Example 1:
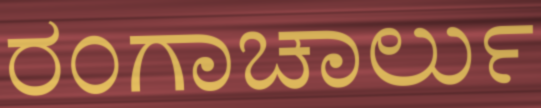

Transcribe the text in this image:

ರಂಗಾಚಾರ್ಲು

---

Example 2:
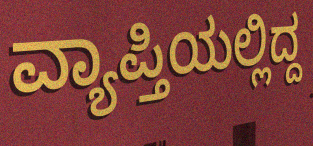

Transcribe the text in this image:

ವ್ಯಾಪ್ತಿಯಲ್ಲಿದ್ದ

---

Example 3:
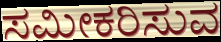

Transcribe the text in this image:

ಸಮೀಕರಿಸುವ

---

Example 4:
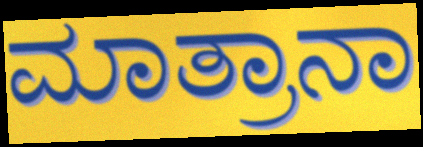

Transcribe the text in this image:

ಮಾತ್ರಾನಾ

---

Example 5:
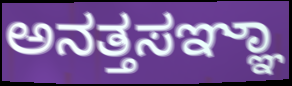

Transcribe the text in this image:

ಅನತ್ತಸಞ್ಞಾ